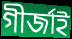
গীৰ্জাই